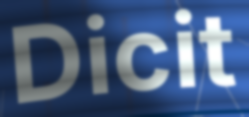
Dicit